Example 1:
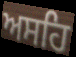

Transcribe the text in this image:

ਅਸਹਿ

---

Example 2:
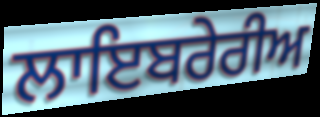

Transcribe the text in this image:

ਲਾਇਬਰੇਰੀਅ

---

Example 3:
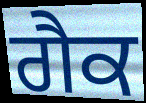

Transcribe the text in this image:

ਗੈਕ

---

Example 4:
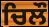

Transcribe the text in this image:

ਚਿਲੌ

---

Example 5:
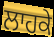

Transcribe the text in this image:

ਲਾਹਕੇ